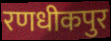
रणधीकपुर